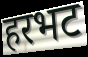
हरभट